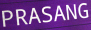
PRASANG